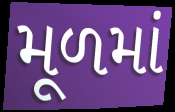
મૂળમાં